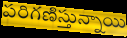
పరిగణిస్తున్నాయి